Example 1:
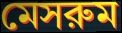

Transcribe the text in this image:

মেসরুম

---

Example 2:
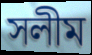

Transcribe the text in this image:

সলীম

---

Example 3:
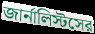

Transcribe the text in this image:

জার্নালিস্টসের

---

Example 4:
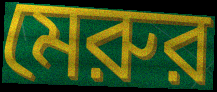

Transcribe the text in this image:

মেরুর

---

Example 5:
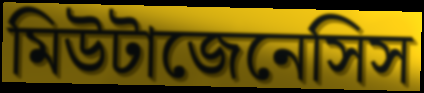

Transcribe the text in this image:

মিউটাজেনেসিস